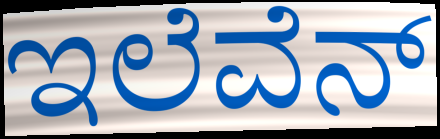
ಇಲೆವೆನ್